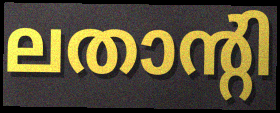
ലതാന്റി